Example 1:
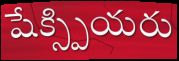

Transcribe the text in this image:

షేక్స్పియరు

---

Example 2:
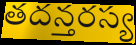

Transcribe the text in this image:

తదన్తరస్య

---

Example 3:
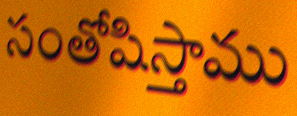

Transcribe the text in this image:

సంతోషిస్తాము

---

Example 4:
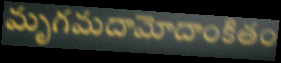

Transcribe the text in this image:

మృగమదామోదాంకితం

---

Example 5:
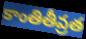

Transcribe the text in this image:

కాంతితీవ్రత